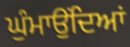
ਘੁੰਮਾਉਂਦਿਆਂ